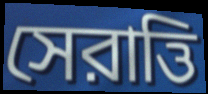
সেরাত্তি